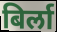
बिर्ला